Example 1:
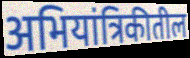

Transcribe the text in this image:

अभियांत्रिकीतील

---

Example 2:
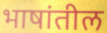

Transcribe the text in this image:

भाषांतील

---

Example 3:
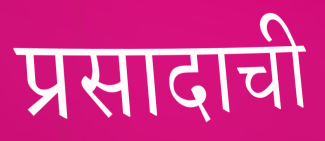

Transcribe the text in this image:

प्रसादाची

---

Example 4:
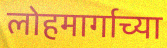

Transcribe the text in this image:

लोहमार्गाच्या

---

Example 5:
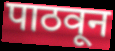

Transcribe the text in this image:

पाठवून